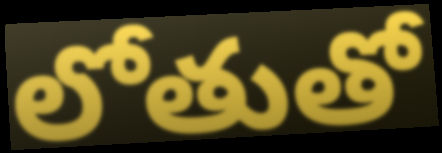
లోతుతో